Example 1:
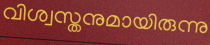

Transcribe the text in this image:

വിശ്വസ്തനുമായിരുന്നു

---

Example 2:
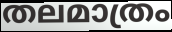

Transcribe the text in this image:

തലമാത്രം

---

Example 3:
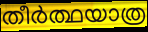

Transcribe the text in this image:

തീർത്ഥയാത്ര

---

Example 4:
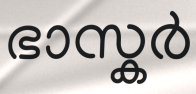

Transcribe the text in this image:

ഭാസ്കർ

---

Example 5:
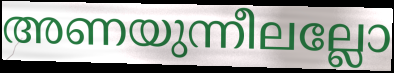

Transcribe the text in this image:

അണയുന്നീലല്ലോ